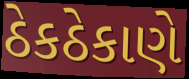
ઠેકઠેકાણે